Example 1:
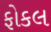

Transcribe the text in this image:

ફોકલ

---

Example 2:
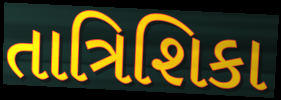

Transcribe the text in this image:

તાત્રિશિકા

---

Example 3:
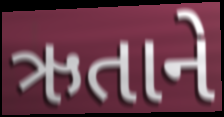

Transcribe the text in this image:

ઋતાને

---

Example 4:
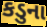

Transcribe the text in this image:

કડુના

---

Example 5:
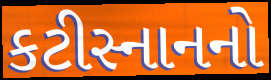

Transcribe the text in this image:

કટીસ્નાનનો